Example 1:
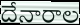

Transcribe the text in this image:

దేనారాల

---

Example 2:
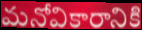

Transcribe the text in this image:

మనోవికారానికి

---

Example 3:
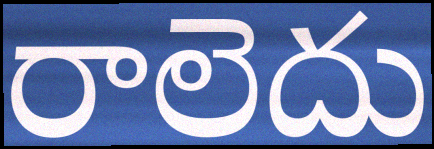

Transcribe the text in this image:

రాలెదు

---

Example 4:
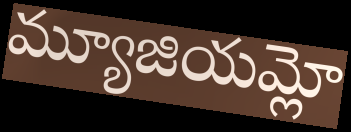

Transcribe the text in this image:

మ్యూజియమ్లో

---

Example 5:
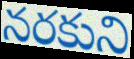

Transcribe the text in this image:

నరకుని